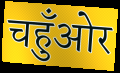
चहुँओर